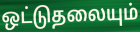
ஒட்டுதலையும்